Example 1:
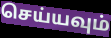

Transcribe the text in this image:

செய்யவும்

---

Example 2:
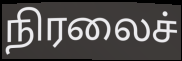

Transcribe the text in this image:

நிரலைச்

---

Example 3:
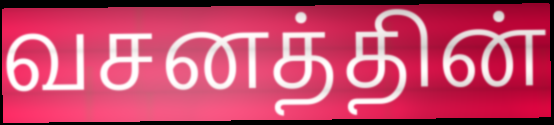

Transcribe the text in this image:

வசனத்தின்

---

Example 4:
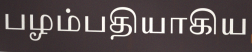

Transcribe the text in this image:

பழம்பதியாகிய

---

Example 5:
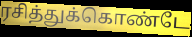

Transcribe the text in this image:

ரசித்துக்கொண்டே